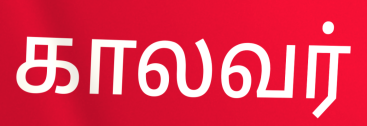
காலவர்